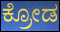
ಕ್ರೋಡ